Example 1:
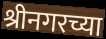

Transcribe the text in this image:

श्रीनगरच्या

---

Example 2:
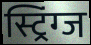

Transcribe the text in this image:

स्ट्रिंग्ज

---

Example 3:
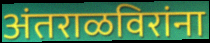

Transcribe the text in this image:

अंतराळविरांना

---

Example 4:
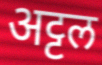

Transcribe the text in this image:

अट्टल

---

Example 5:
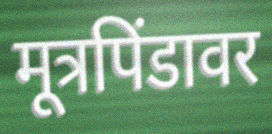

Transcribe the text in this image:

मूत्रपिंडावर